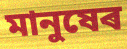
মানুষেৰ